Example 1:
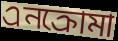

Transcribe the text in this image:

এনক্রোমা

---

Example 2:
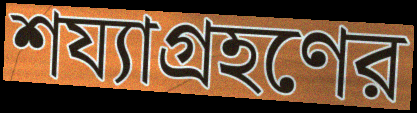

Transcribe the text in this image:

শয্যাগ্রহণের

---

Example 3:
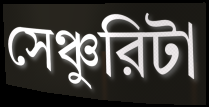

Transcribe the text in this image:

সেঞ্চুরিটা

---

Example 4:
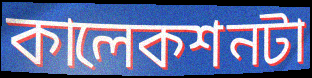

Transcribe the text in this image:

কালেকশনটা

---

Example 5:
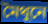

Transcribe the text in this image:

মৈথুনে